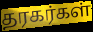
தரகர்கள்